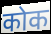
कोक